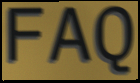
FAQ